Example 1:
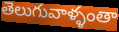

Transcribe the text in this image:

తెలుగువాళ్ళంతా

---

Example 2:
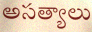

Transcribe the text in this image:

అసత్యాలు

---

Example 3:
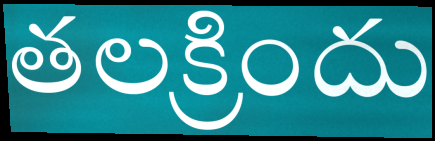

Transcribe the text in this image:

తలక్రిందు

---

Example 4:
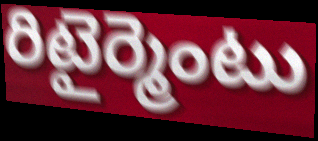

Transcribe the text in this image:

రిటైర్మెంటు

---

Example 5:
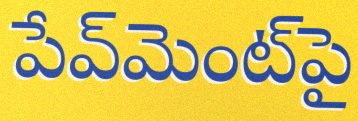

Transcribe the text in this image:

పేవ్‌మెంట్‌పై